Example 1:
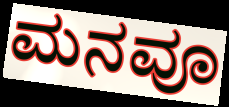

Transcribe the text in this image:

ಮನವೂ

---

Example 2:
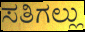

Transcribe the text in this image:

ಸತಿಗಲ್ಲು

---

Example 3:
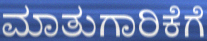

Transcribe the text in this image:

ಮಾತುಗಾರಿಕೆಗೆ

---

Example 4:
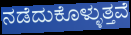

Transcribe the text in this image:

ನಡೆದುಕೊಳ್ಳುತ್ತವೆ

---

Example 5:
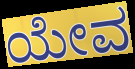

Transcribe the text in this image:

ಯೇವ